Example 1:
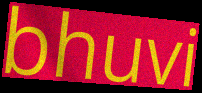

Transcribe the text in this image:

bhuvi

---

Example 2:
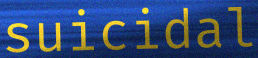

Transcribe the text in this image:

suicidal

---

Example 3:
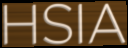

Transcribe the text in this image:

HSIA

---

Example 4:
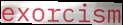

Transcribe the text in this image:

exorcism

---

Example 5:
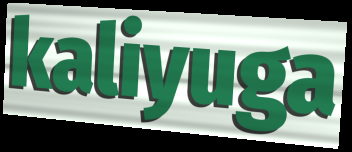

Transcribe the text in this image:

kaliyuga